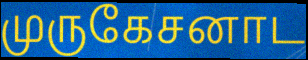
முருகேசனாட